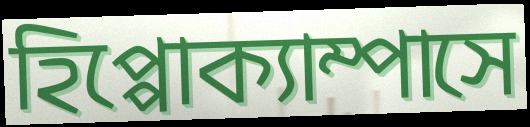
হিপ্পোক্যাম্পাসে